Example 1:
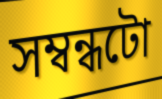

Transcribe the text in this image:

সম্বন্ধটো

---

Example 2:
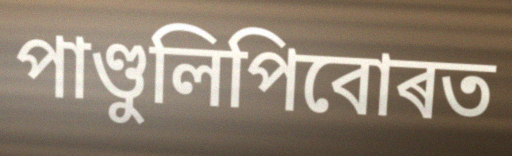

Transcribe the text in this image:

পাণ্ডুলিপিবোৰত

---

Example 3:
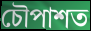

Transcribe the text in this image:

চৌপাশত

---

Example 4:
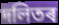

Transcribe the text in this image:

দলিতৰ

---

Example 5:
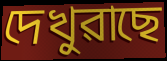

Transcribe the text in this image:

দেখুৱাছে